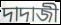
দাদাজী